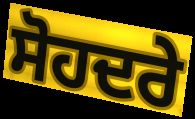
ਸੋਹਦਰੇ